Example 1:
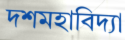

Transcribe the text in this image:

দশমহাবিদ্যা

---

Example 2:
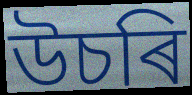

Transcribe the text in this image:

উচৰি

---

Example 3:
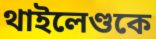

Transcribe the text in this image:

থাইলেণ্ডকে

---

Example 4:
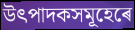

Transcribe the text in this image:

উৎপাদকসমূহেৰে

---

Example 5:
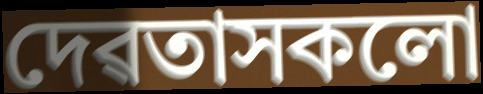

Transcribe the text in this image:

দেৱতাসকলো